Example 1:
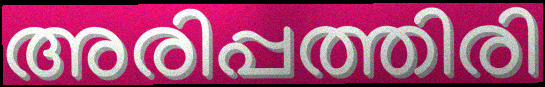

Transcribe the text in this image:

അരിപ്പത്തിരി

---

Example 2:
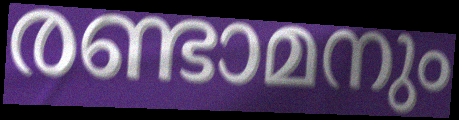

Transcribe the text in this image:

രണ്ടാമനും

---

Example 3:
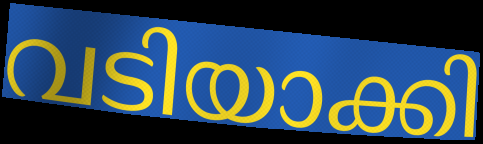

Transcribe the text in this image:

വടിയാക്കി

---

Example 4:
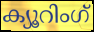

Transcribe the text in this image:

ക്യൂറിംഗ്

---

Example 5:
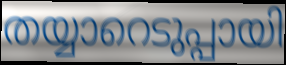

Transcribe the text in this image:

തയ്യാറെടുപ്പായി